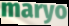
maryo